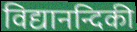
विद्यानन्दिकी